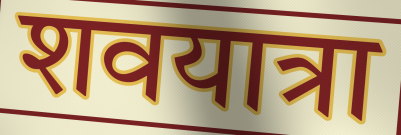
शवयात्रा